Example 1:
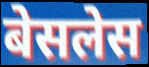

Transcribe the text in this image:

बेसलेस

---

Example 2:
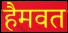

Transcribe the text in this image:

हैमवत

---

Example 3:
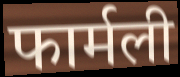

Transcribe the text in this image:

फार्मली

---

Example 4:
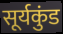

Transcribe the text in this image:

सूर्यकुंड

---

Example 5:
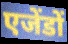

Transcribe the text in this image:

एजेंडों